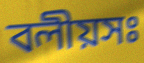
বলীয়সঃ